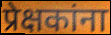
प्रेक्षकांना